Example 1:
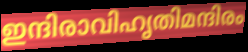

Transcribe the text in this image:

ഇന്ദിരാവിഹൃതിമന്ദിരം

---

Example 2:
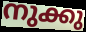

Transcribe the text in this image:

നുക്കു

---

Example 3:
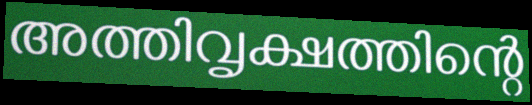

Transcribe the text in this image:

അത്തിവൃക്ഷത്തിന്റെ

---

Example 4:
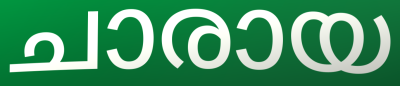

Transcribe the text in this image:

ചാരായ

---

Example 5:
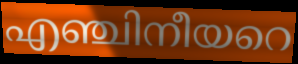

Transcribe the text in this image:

എഞ്ചിനീയറെ